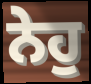
ਨੇਹੁ